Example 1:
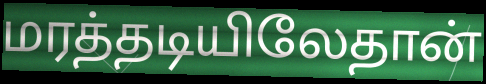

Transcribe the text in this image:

மரத்தடியிலேதான்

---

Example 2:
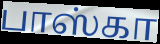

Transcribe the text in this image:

பாஸ்கா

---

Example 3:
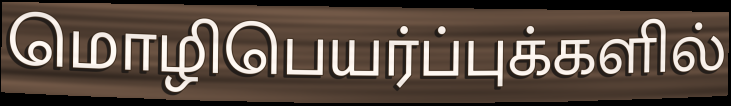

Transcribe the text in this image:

மொழிபெயர்ப்புக்களில்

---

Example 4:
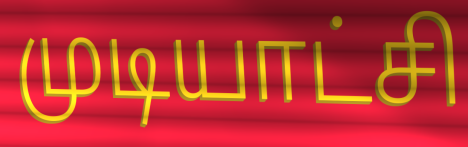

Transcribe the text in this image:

முடியாட்சி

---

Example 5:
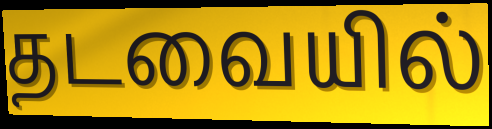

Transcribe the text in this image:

தடவையில்